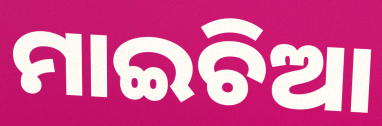
ମାଇଚିଆ